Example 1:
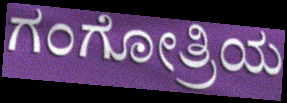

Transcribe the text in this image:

ಗಂಗೋತ್ರಿಯ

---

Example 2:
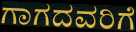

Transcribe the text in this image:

ಗಾಗದವರಿಗೆ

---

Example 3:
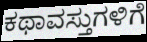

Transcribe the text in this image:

ಕಥಾವಸ್ತುಗಳಿಗೆ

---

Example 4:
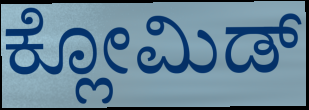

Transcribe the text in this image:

ಕ್ಲೋಮಿಡ್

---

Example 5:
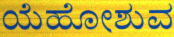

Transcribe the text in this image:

ಯೆಹೋಶುವ